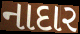
નાદાર